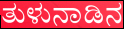
ತುಳುನಾಡಿನ